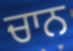
ਚਾਨ